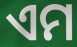
ଏମ